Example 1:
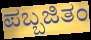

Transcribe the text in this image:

ಪಬ್ಬಜಿತಂ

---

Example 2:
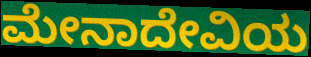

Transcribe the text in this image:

ಮೇನಾದೇವಿಯ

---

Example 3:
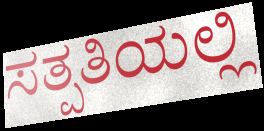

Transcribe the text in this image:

ಸತ್ಪತಿಯಲ್ಲಿ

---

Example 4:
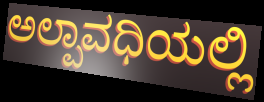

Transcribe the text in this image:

ಅಲ್ಪಾವಧಿಯಲ್ಲಿ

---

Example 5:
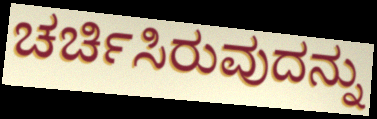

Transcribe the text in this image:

ಚರ್ಚಿಸಿರುವುದನ್ನು